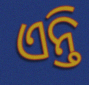
ଏନ୍ତି